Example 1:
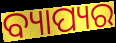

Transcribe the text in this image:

ବ୍ୟାପ୍ୟର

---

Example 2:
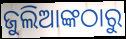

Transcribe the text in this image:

ଜୁଲିଆଙ୍କଠାରୁ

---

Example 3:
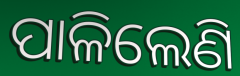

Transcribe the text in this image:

ପାଳିଲେଣି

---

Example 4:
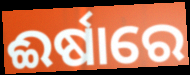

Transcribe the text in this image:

ଈର୍ଷାରେ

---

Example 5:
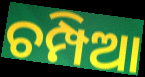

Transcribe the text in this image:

ଚମ୍ପିଆ